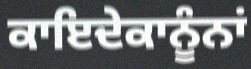
ਕਾਇਦੇਕਾਨੂੰਨਾਂ